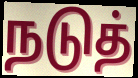
நடுத்